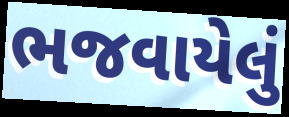
ભજવાયેલું